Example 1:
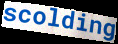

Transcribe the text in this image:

scolding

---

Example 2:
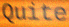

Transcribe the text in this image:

Quite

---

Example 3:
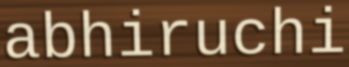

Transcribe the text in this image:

abhiruchi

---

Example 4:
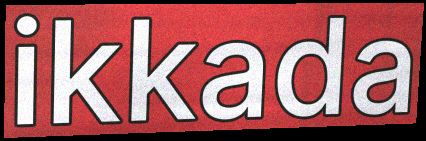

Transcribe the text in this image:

ikkada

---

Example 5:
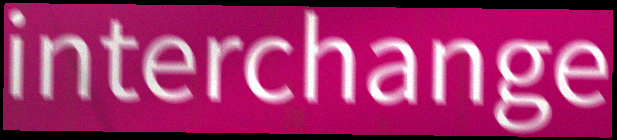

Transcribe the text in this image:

interchange